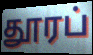
தூரப்